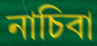
নাচিবা